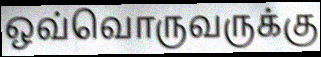
ஒவ்வொருவருக்கு